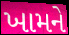
ખામને